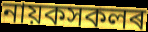
নায়কসকলৰ